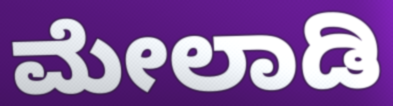
ಮೇಲಾಡಿ